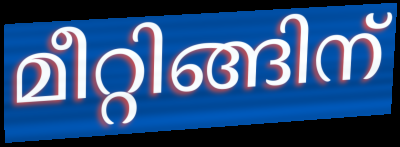
മീറ്റിങ്ങിന്